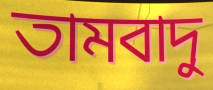
তামবাদু